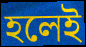
হলেই